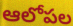
ఆలోపల